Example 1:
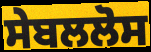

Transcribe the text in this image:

ਸੇਬਲਲੋਸ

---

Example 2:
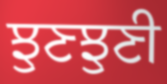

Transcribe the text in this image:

ਝੁਣਝੁਣੀ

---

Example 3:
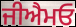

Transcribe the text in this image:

ਜੀਐਮਓ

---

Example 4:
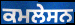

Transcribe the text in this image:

ਕਮਲੇਸਨ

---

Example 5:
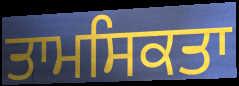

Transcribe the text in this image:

ਤਾਮਸਿਕਤਾ